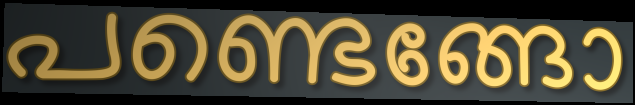
പണ്ടെങ്ങോ